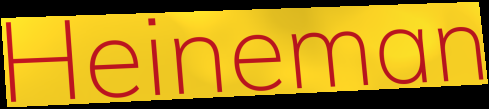
Heineman